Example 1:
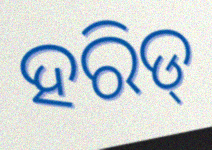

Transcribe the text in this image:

ହରିଡ୍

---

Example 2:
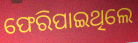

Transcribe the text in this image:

ଫେରିପାଇଥିଲେ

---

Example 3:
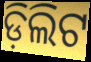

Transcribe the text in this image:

ଡ଼ିଲିଟ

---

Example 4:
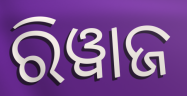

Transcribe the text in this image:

ରିୱାଜ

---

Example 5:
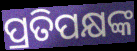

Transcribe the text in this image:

ପ୍ରତିପକ୍ଷଙ୍କ